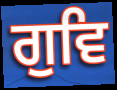
ਗੁਵਿ